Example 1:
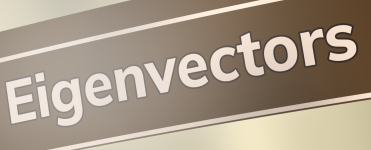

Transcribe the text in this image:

Eigenvectors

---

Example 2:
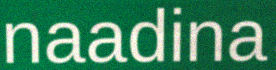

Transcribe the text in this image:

naadina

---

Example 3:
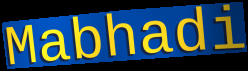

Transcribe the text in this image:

Mabhadi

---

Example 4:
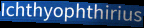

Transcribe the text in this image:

Ichthyophthirius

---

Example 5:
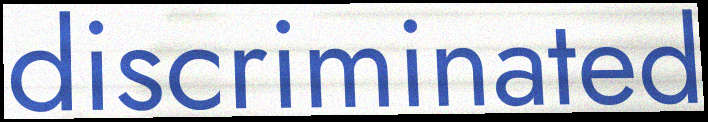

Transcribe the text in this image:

discriminated